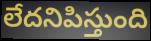
లేదనిపిస్తుంది